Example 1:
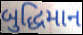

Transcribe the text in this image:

બુદ્ધિમાન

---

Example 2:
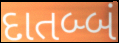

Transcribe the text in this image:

દાતબ્બં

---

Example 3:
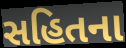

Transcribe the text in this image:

સહિતના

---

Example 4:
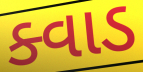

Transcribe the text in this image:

ક્વાડ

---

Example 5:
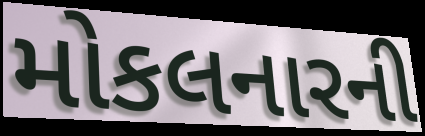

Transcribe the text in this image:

મોકલનારની